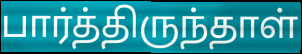
பார்த்திருந்தாள்